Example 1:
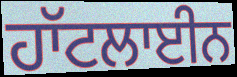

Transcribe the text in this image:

ਹਾੱਟਲਾਈਨ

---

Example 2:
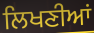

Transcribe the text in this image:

ਲਿਖਣੀਆਂ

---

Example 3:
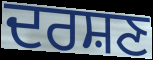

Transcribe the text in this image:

ਦਰਸ਼ਣ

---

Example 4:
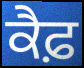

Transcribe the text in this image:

ਕੈਫ਼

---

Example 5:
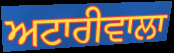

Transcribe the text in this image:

ਅਟਾਰੀਵਾਲਾ